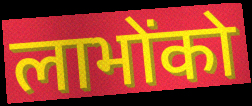
लाभोंको